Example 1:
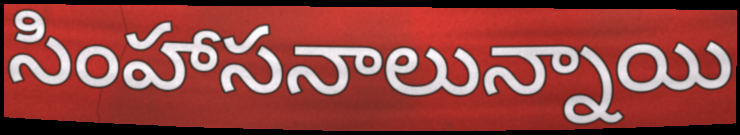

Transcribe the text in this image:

సింహాసనాలున్నాయి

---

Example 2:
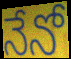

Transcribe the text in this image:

నేనో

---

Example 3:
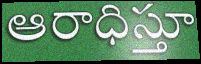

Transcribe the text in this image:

ఆరాధిస్తూ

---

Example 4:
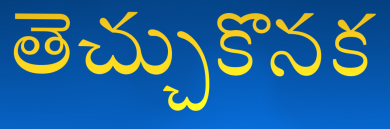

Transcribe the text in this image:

తెచ్చుకొనక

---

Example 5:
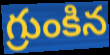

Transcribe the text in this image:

గ్రుంకిన